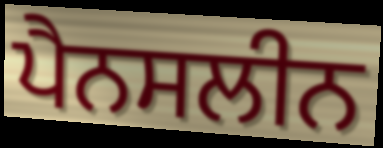
ਪੈਨਸਲੀਨ